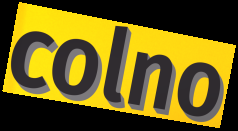
colno